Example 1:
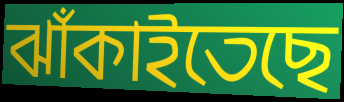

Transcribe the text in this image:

ঝাঁকাইতেছে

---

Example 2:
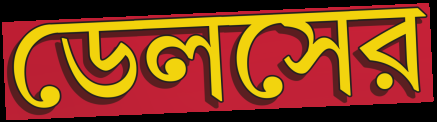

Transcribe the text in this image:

ডেলসের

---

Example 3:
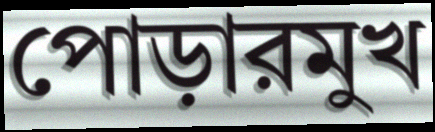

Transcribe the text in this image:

পোড়ারমুখ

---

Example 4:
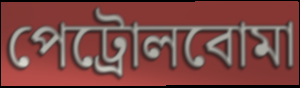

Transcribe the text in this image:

পেট্রোলবোমা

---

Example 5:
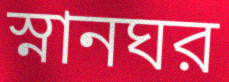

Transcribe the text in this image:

স্নানঘর